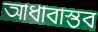
আধাবাস্তব